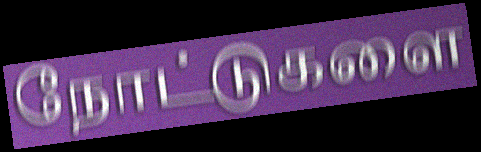
நோட்டுகளை